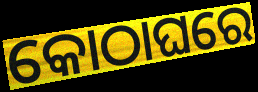
କୋଠାଘରେ